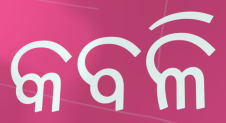
କବଳି